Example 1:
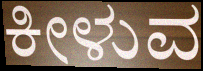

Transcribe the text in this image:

ಕೀಳುವ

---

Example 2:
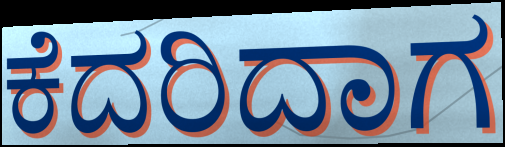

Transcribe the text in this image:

ಕೆದರಿದಾಗ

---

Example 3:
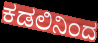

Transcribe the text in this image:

ಕಡಲಿನಿಂದ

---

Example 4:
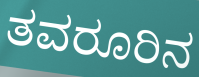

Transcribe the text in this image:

ತವರೂರಿನ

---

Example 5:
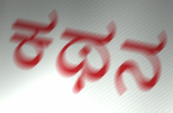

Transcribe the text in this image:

ಕಥನ